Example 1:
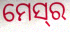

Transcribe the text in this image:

ମେସ୍‌ର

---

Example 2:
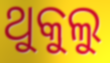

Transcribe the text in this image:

ଥୁକୁଲୁ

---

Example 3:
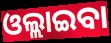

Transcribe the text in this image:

ଓଲ୍ଲାଇବା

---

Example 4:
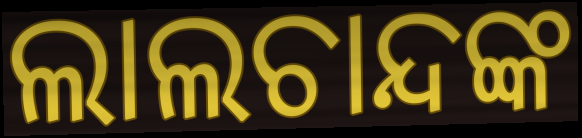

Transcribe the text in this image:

ଲାଲଚାନ୍ଦଙ୍କ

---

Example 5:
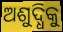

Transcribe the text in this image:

ଅଶୁଦ୍ଧିକୁ